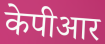
केपीआर